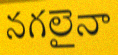
నగలైనా